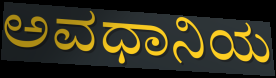
ಅವಧಾನಿಯ